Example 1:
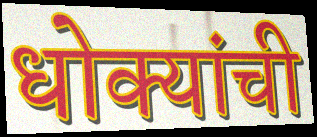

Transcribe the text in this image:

धोक्यांची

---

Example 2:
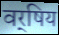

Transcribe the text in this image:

वर्षिय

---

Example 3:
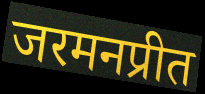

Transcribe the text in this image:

जरमनप्रीत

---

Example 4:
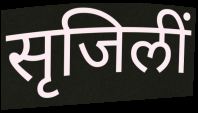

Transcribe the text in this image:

सृजिलीं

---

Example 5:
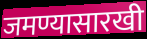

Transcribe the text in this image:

जमण्यासारखी